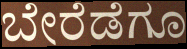
ಬೇರೆಡೆಗೂ